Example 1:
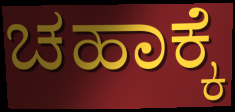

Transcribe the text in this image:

ಚಹಾಕ್ಕೆ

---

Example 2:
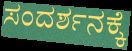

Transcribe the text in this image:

ಸಂದರ್ಶನಕ್ಕೆ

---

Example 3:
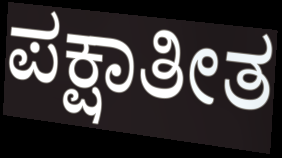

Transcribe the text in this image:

ಪಕ್ಷಾತೀತ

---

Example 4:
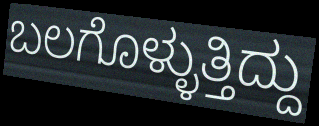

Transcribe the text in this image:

ಬಲಗೊಳ್ಳುತ್ತಿದ್ದು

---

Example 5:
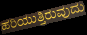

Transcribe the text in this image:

ಹರಿಯುತ್ತಿರುವುದು